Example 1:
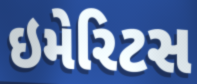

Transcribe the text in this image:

ઇમેરિટસ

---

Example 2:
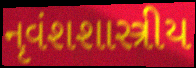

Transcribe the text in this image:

નૃવંશશાસ્ત્રીય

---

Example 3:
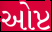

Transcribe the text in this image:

ઓપ્ટ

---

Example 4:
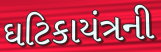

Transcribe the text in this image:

ઘટિકાયંત્રની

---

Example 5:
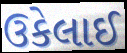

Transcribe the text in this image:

ઉકેલાઈ